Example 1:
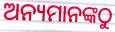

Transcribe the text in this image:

ଅନ୍ୟମାନଙ୍କଠୁ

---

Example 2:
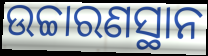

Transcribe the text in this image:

ଉଚ୍ଚାରଣସ୍ଥାନ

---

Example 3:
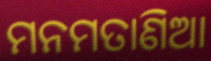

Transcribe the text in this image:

ମନମତାଣିଆ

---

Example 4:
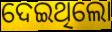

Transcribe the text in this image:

ଦେଇଥିଲୋ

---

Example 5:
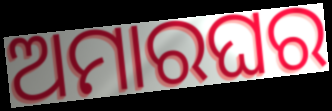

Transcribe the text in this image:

ଅମାରଘର